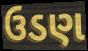
ઉડણ